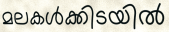
മലകൾക്കിടയിൽ